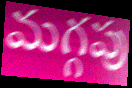
మగ్గపు